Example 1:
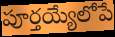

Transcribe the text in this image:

పూర్తయ్యేలోపే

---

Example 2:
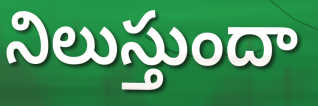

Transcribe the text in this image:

నిలుస్తుందా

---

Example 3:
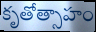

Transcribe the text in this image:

కృతోత్సాహం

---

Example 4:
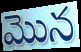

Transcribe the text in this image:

మొన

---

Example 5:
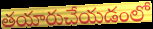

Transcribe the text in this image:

తయారుచేయడంలో